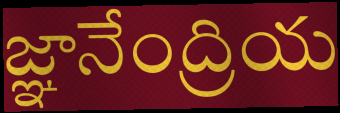
జ్ఞానేంద్రియ